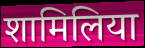
शामिलिया